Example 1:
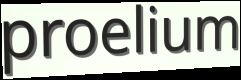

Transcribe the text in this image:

proelium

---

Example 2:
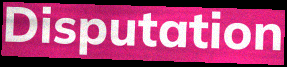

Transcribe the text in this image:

Disputation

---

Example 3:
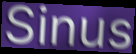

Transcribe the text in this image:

Sinus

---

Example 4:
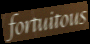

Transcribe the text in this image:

fortuitous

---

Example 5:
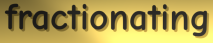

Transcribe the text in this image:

fractionating